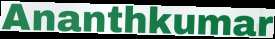
Ananthkumar